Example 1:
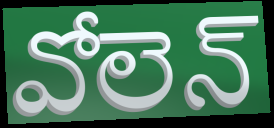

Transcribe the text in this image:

వోలెన్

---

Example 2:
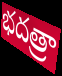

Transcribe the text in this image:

భదత్రా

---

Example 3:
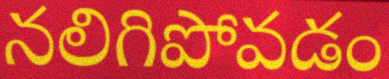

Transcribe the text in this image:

నలిగిపోవడం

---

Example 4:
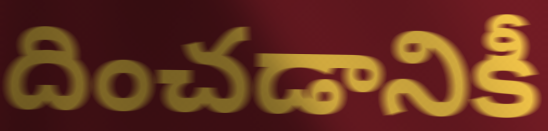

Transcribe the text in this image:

దించడానికీ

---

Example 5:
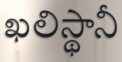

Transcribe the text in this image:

ఖలిస్థానీ